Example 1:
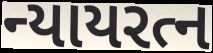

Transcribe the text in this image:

ન્યાયરત્ન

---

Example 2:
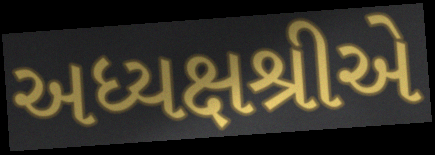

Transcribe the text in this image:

અધ્યક્ષશ્રીએ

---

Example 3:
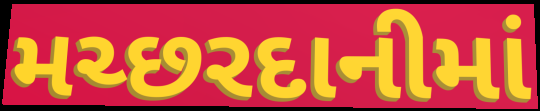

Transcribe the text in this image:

મચ્છરદાનીમાં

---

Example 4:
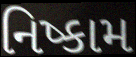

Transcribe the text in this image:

નિષ્કામ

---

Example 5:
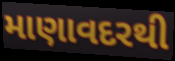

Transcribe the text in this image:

માણાવદરથી